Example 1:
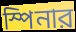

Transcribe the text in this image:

স্পিনার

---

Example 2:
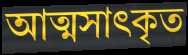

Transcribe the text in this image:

আত্মসাৎকৃত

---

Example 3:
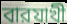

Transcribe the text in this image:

বারযাখী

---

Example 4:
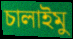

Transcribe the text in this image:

চালাইমু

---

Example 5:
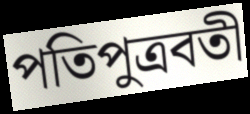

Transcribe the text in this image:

পতিপুত্রবতী